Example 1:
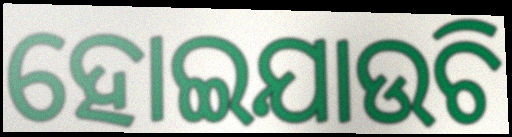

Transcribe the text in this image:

ହୋଇଯାଉଚି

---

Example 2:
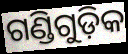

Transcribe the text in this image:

ଗଣ୍ଡିଗୁଡ଼ିକ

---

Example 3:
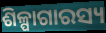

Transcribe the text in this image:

ଶିଳ୍ପାଗାରସ୍ୟ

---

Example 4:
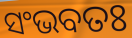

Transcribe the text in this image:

ସଂଭବତଃ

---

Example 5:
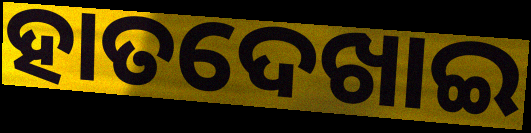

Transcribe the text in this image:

ହାତଦେଖାଇ